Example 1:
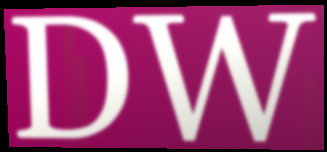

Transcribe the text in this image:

DW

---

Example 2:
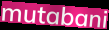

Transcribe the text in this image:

mutabani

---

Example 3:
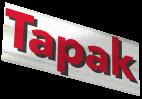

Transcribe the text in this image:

Tapak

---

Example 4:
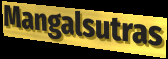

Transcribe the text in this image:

Mangalsutras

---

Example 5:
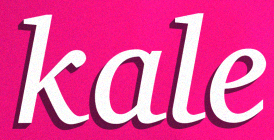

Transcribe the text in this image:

kale